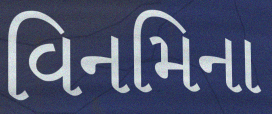
વિનમિના